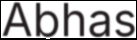
Abhas